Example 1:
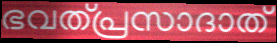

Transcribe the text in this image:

ഭവത്പ്രസാദാത്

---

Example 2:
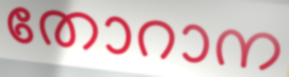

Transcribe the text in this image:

തോറാന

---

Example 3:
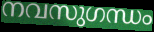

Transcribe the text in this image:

നവസുഗന്ധം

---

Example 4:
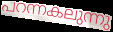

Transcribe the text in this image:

പറന്നകലുന്നു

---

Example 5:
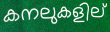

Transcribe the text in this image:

കനലുകളില്